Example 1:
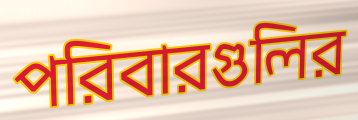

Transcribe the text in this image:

পরিবারগুলির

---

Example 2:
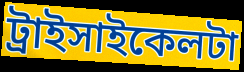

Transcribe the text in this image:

ট্রাইসাইকেলটা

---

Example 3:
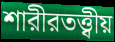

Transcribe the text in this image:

শারীরতত্ত্বীয়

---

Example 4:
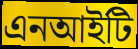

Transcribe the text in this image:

এনআইটি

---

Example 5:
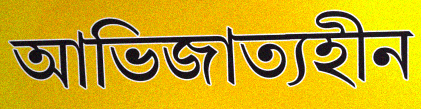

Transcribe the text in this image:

আভিজাত্যহীন